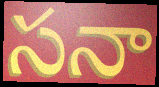
సనా